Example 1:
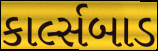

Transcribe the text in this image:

કાર્લ્સબાડ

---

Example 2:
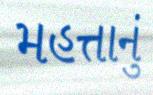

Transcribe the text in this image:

મહત્તાનું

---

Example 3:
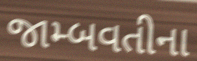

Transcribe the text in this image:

જામ્બવતીના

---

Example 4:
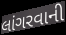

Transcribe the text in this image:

લાંગરવાની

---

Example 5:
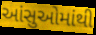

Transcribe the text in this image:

આંસુઓમાંથી